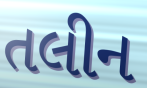
તલીન